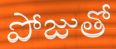
పోజుతో